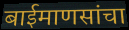
बाईमाणसांचा